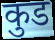
कुड